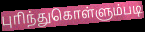
புரிந்துகொள்ளும்படி